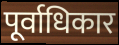
पूर्वाधिकार